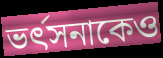
ভর্ৎসনাকেও